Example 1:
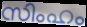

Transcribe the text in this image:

സിംഹം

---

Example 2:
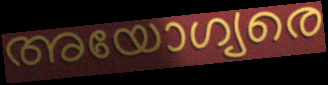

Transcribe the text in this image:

അയോഗ്യരെ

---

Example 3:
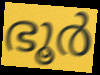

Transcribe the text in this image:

ഭൂർ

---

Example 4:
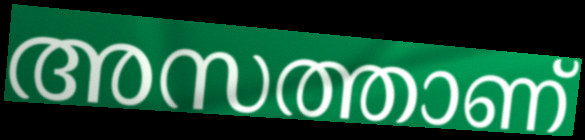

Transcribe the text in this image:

അസത്താണ്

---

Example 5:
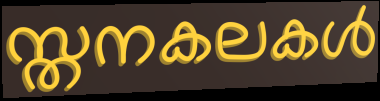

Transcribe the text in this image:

സ്തനകലകൾ